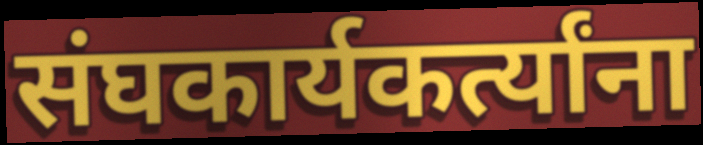
संघकार्यकर्त्यांना